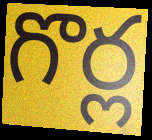
గొర్ల